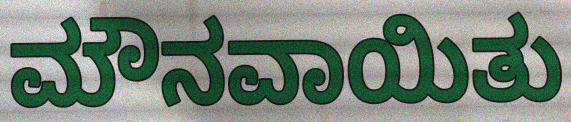
ಮೌನವಾಯಿತು